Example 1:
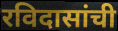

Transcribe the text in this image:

रविदासांची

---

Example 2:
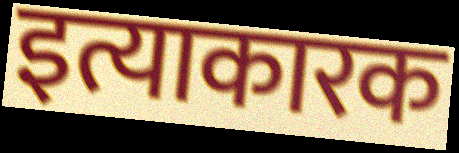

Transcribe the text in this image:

इत्याकारक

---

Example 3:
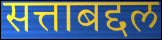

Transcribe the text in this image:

सत्ताबद्दल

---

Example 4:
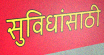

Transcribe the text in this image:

सुविधांसाठी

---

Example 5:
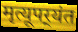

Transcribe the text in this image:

मृत्यूपर्यंत